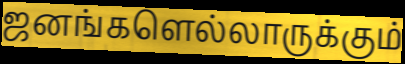
ஜனங்களெல்லாருக்கும்